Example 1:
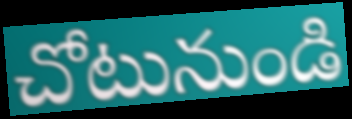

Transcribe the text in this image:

చోటునుండి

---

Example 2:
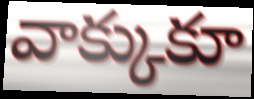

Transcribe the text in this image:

వాక్కుకూ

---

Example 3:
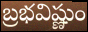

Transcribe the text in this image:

బ్రభవిష్ణుం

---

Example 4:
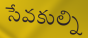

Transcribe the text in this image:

సేవకుల్ని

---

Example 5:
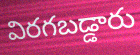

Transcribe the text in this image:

విరగబడ్డారు